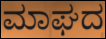
ಮಾಘದ